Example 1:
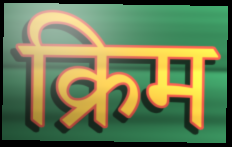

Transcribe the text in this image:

क्रिम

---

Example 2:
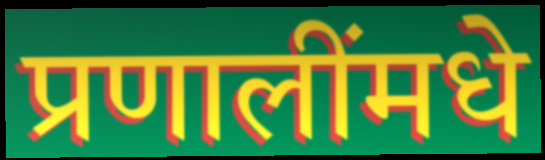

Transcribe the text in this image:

प्रणालींमधे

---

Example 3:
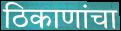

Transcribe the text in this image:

ठिकाणांचा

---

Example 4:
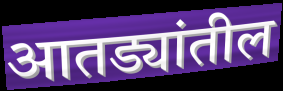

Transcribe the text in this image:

आतड्यांतील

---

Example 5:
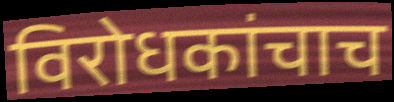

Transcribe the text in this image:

विरोधकांचाच